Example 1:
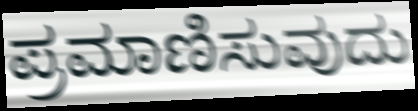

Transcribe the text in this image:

ಪ್ರಮಾಣಿಸುವುದು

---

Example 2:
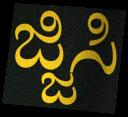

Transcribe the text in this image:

ಜ್ಜಿಸಿ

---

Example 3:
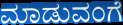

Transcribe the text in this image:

ಮಾಡುವಂಗೆ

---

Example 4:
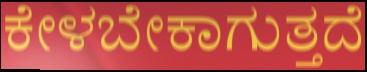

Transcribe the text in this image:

ಕೇಳಬೇಕಾಗುತ್ತದೆ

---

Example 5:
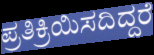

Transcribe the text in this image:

ಪ್ರತಿಕ್ರಿಯಿಸದಿದ್ದರೆ